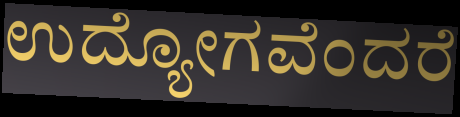
ಉದ್ಯೋಗವೆಂದರೆ